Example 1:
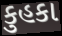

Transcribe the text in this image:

કુહકા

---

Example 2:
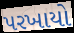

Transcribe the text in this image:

પરખાયો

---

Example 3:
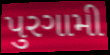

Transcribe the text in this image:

પુરગામી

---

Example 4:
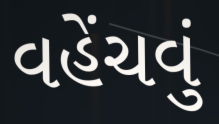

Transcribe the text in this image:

વહેંચવું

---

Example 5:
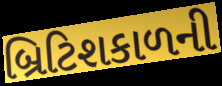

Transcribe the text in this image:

બ્રિટિશકાળની